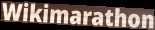
Wikimarathon